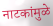
नाटकांमुळे